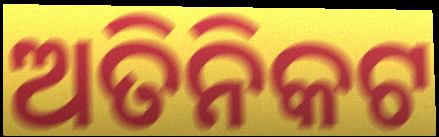
ଅତିନିକଟ